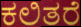
ಕಲಿತರೆ